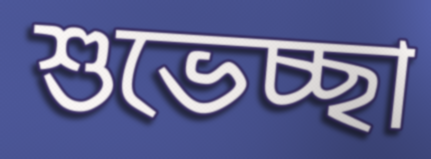
শুভেচ্ছা